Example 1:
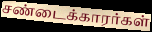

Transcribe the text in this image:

சண்டைக்காரர்கள்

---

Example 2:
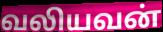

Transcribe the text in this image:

வலியவன்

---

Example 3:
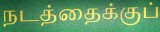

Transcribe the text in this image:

நடத்தைக்குப்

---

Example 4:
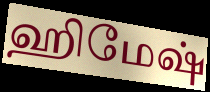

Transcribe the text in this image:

ஹிமேஷ்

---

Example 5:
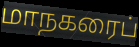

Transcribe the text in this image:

மாநகரைப்